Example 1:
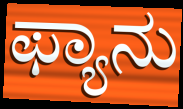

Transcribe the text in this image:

ಫ್ಯಾನು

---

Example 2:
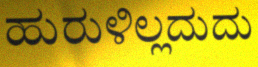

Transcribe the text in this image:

ಹುರುಳಿಲ್ಲದುದು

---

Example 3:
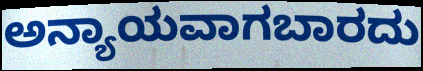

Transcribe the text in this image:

ಅನ್ಯಾಯವಾಗಬಾರದು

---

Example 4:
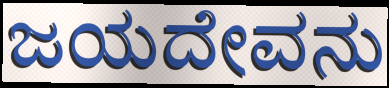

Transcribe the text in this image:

ಜಯದೇವನು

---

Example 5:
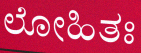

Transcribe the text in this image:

ಲೋಹಿತಃ